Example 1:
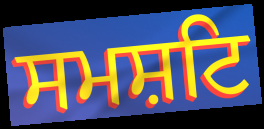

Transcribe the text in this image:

ਸਮਸ਼ਟਿ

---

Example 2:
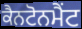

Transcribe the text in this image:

ਕੈਨਟੋਨਮੈਂਟ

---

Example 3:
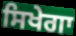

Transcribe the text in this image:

ਸਿਖੇਗਾ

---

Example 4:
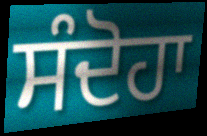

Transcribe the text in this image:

ਸੰਦੋਹਾ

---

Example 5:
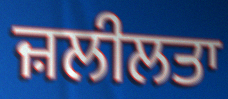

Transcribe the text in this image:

ਜ਼ਲੀਲਤਾ